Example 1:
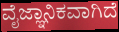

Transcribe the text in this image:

ವೈಜ್ಞಾನಿಕವಾಗಿದೆ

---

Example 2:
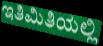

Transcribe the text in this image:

ಇತಿಮಿತಿಯಲ್ಲಿ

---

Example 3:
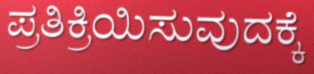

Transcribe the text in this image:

ಪ್ರತಿಕ್ರಿಯಿಸುವುದಕ್ಕೆ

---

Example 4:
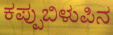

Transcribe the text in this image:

ಕಪ್ಪುಬಿಳುಪಿನ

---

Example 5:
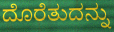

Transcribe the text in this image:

ದೊರೆತುದನ್ನು